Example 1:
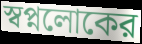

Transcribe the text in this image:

স্বপ্নলোকের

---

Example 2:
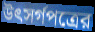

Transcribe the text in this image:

উৎসর্গপত্রের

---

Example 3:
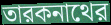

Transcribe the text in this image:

তারকনাথের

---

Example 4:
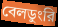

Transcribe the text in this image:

বেলডুংরি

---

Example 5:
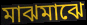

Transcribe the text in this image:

মাঝমাঝে